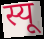
स्यू